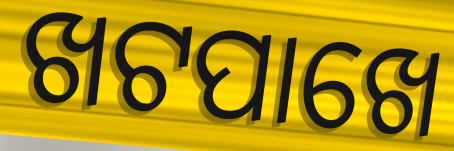
ଖଟପାଖେ